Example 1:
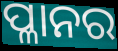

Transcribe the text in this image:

ପ୍ଳାନର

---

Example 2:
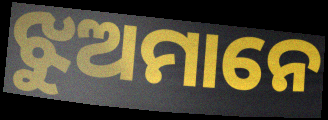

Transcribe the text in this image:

ଝୁଅମାନେ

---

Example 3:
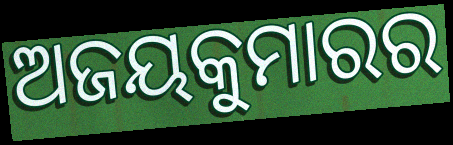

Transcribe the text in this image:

ଅଜୟକୁମାରର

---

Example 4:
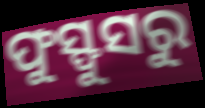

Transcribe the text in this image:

ଫୁସ୍ଫୁସରୁ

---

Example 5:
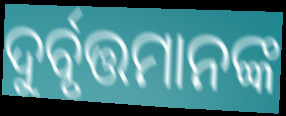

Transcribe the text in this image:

ଦୁର୍ବୃତ୍ତମାନଙ୍କ